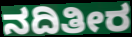
ನದಿತೀರ